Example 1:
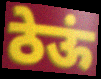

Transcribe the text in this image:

ठेऊं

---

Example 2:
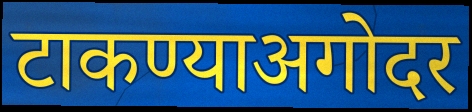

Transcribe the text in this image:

टाकण्याअगोदर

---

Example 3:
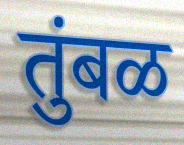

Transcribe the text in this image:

तुंबळ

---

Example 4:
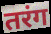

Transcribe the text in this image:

तरंग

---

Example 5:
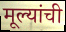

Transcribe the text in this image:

मूल्यांची